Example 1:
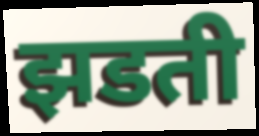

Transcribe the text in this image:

झडती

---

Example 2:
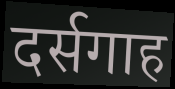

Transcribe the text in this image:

दर्सगाह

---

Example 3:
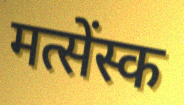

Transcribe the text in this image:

मत्सेंस्क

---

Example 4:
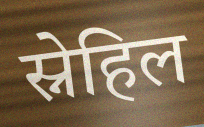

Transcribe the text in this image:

स्नेहिल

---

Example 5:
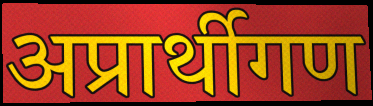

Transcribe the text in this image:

अप्रार्थीगण